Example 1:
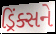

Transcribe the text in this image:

ડ્રિંક્સને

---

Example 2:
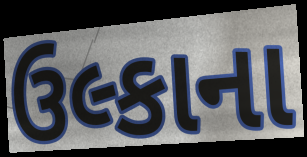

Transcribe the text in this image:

ઉલ્કાના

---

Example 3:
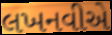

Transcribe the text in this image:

લખનવીએ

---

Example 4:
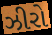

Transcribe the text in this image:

ઝીરો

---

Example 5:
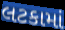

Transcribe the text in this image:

લટકામાં